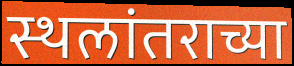
स्थलांतराच्या